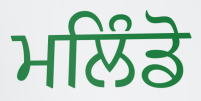
ਮਲਿੰਡੋ